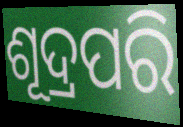
ଶୂଦ୍ରପରି